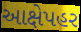
આક્ષેપહર